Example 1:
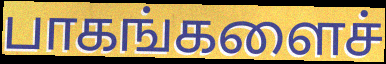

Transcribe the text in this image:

பாகங்களைச்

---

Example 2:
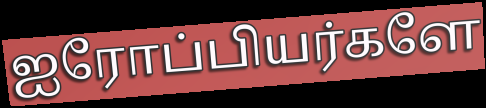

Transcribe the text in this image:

ஐரோப்பியர்களே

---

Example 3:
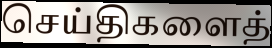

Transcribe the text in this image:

செய்திகளைத்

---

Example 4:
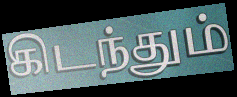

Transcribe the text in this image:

கிடந்தும்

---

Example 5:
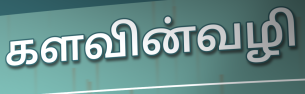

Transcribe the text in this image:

களவின்வழி